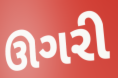
ઊગરી